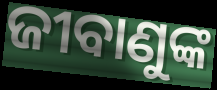
ଜୀବାଣୁଙ୍କ